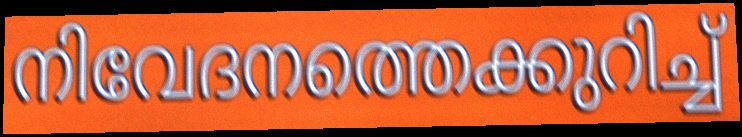
നിവേദനത്തെക്കുറിച്ച്